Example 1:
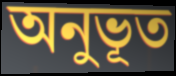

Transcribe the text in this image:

অনুভূত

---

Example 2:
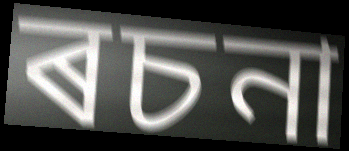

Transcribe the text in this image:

ৰচনা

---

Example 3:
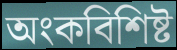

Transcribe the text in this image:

অংকবিশিষ্ট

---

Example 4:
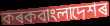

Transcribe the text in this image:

কৰকবাংলাদেশৰ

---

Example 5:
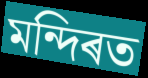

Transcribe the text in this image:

মন্দিৰত